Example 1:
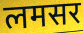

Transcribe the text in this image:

लमसर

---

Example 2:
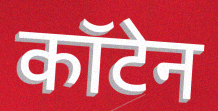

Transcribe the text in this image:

कॉटेन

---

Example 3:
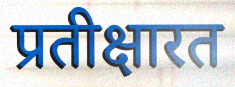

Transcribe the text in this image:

प्रतीक्षारत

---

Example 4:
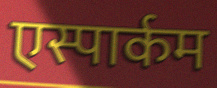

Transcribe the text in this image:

एस्पार्कम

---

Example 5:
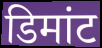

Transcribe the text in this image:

डिमांट